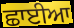
ਛਾਈਆ